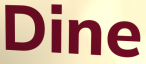
Dine